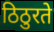
ठिठुरते